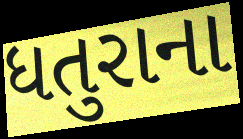
ધતુરાના